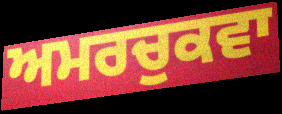
ਅਮਰਚੁਕਵਾ